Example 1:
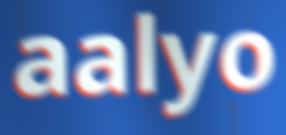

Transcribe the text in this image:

aalyo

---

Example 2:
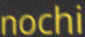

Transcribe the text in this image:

nochi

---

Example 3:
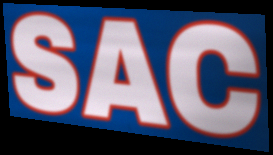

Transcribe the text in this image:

SAC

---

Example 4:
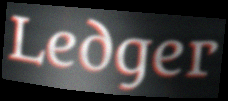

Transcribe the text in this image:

Ledger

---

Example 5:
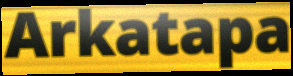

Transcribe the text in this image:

Arkatapa